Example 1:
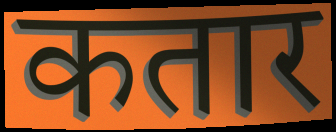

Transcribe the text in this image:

कतार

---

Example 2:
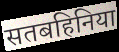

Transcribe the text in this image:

सतबहिनिया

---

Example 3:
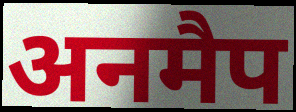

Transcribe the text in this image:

अनमैप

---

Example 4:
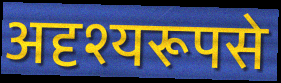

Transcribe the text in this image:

अदृश्यरूपसे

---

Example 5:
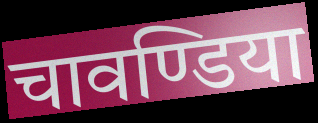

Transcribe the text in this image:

चावण्डिया